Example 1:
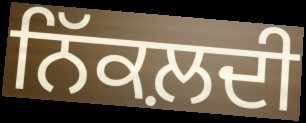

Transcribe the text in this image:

ਨਿੱਕਲ਼ਦੀ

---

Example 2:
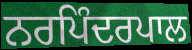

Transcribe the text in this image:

ਨਰਪਿੰਦਰਪਾਲ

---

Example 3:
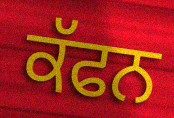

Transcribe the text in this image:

ਕੱਫਨ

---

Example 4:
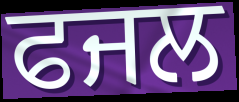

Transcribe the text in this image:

ਫਜਲ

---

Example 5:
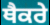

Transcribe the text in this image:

ਥੈਕਰੇ